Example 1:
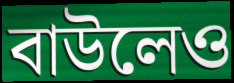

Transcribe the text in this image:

বাউলেও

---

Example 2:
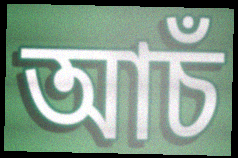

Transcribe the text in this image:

আচঁ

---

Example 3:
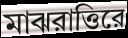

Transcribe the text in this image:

মাঝরাত্তিরে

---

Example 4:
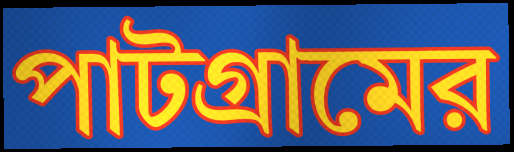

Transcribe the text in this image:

পাটগ্রামের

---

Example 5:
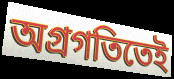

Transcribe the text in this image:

অগ্রগতিতেই